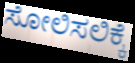
ಸೋಲಿಸಲಿಕ್ಕೆ